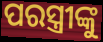
ପରସ୍ତ୍ରୀଙ୍କୁ